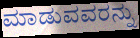
ಮಾಡುವವರನ್ನು